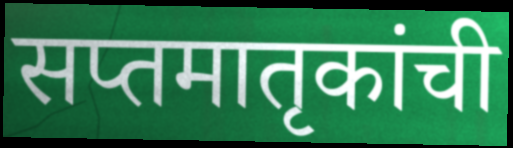
सप्तमातृकांची